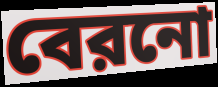
বেরনো